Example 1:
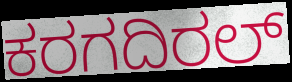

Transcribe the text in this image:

ಕರಗದಿರಲ್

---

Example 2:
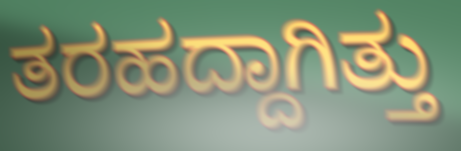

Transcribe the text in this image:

ತರಹದ್ದಾಗಿತ್ತು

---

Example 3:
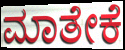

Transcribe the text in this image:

ಮಾತೇಕೆ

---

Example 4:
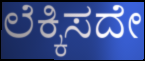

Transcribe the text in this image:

ಲೆಕ್ಕಿಸದೇ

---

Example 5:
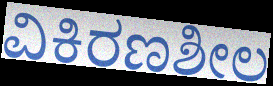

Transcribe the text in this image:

ವಿಕಿರಣಶೀಲ